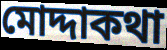
মোদ্দাকথা